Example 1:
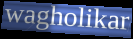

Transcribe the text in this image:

wagholikar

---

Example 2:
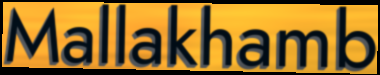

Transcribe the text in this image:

Mallakhamb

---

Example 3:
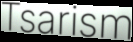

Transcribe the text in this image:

Tsarism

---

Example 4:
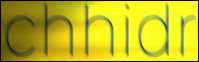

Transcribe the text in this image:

chhidr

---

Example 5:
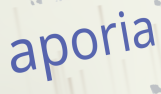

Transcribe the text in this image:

aporia